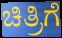
ಚಿತ್ರಿಗೆ